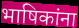
भाषिकांना